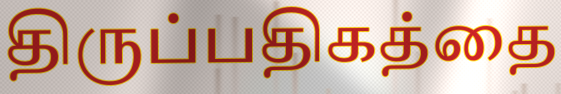
திருப்பதிகத்தை